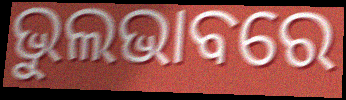
ଭୁଲଭାବରେ